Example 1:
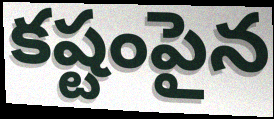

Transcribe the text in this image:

కష్టంపైన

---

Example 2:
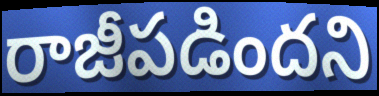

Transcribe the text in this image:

రాజీపడిందని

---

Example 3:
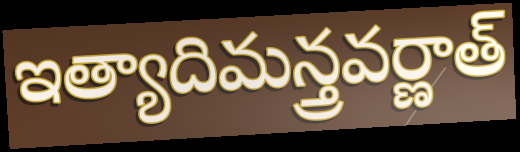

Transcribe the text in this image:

ఇత్యాదిమన్త్రవర్ణాత్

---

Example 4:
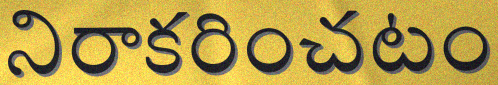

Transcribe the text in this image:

నిరాకరించటం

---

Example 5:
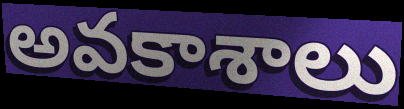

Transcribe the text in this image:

అవకాశాలు